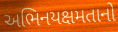
અભિનયક્ષમતાનો